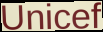
Unicef